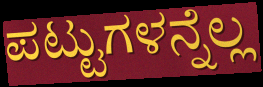
ಪಟ್ಟುಗಳನ್ನೆಲ್ಲ